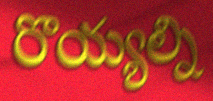
రొయ్యల్ని